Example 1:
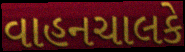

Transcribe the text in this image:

વાહનચાલકે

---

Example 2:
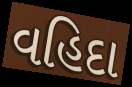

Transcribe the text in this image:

વહિદા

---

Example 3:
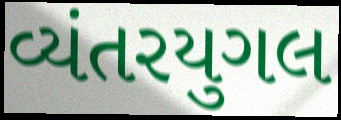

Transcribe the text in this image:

વ્યંતરયુગલ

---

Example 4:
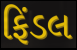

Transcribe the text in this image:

ફિંડલ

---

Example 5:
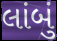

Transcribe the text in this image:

લાંબું